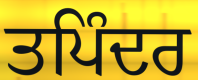
ਤਪਿੰਦਰ